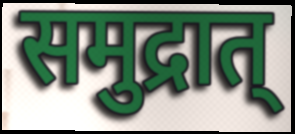
समुद्रात्